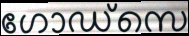
ഗോഡ്സെ